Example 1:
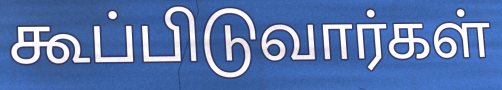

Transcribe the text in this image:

கூப்பிடுவார்கள்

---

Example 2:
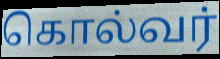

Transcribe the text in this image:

கொல்வர்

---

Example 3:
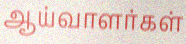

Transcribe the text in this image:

ஆய்வாளர்கள்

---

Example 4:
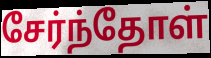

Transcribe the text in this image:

சேர்ந்தோள்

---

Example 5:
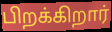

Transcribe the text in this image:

பிறக்கிறார்